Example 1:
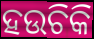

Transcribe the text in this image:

ହଉଚିକି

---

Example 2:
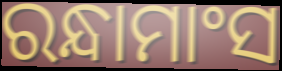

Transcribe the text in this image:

ରନ୍ଧାମାଂସ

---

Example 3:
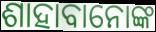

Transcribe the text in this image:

ଶାହାବାନୋଙ୍କ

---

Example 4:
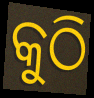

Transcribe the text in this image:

କୁଠି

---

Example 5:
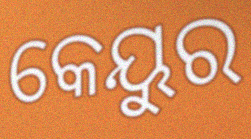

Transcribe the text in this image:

କେୟୁର